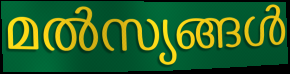
മൽസ്യങ്ങൾ